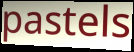
pastels